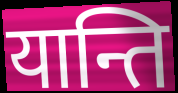
यान्ति